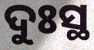
ଦୁଃସ୍ଥ